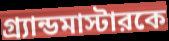
গ্র্যান্ডমাস্টারকে